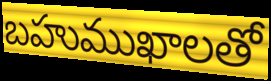
బహుముఖాలతో